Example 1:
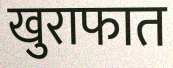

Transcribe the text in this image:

खुराफात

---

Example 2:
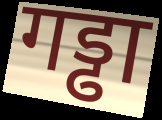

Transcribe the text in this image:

गड्ढा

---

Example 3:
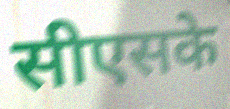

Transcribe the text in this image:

सीएसके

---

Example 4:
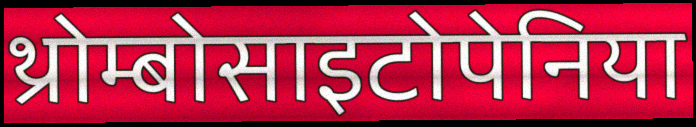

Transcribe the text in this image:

थ्रोम्बोसाइटोपेनिया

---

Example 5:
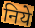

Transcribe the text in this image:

निये